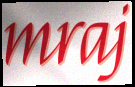
mraj